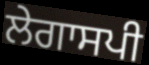
ਲੇਗਾਸਪੀ